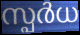
സ്പർധ